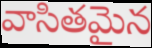
వాసితమైన